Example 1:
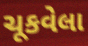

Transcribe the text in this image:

ચૂકવેલા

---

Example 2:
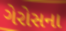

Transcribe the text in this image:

ગેરોસના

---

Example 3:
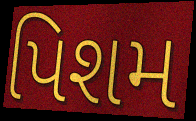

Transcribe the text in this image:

પિશમ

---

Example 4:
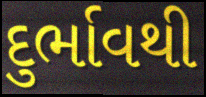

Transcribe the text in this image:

દુર્ભાવથી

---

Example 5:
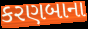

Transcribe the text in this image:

કરણબાના